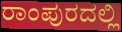
ರಾಂಪುರದಲ್ಲಿ